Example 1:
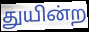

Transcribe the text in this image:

துயின்ற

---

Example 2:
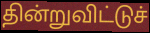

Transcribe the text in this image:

தின்றுவிட்டுச்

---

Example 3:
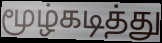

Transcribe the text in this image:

மூழ்கடித்து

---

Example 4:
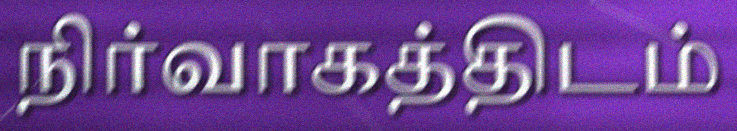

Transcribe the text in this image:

நிர்வாகத்திடம்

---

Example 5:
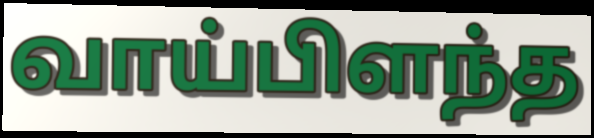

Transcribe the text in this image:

வாய்பிளந்த